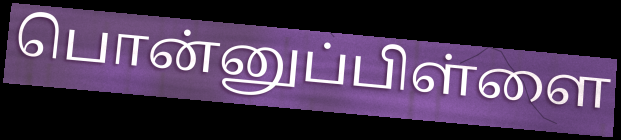
பொன்னுப்பிள்ளை